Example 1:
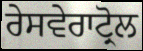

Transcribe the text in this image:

ਰੇਸਵੇਰਾਟ੍ਰੋਲ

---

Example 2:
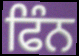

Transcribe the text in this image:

ਫਿੰਨ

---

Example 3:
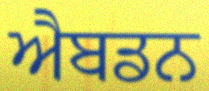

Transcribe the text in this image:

ਐਬਡਨ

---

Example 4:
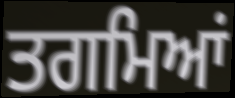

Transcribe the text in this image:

ਤਗਮਿਆਂ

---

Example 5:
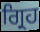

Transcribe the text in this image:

ਗ੍ਰਿਹ